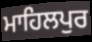
ਮਾਹਿਲਪੁਰ